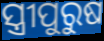
ସ୍ତ୍ରୀପୁରୁଷ